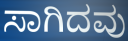
ಸಾಗಿದವು